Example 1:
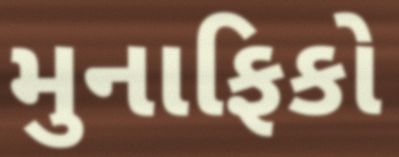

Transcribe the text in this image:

મુનાફિકો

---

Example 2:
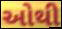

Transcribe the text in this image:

ઓથી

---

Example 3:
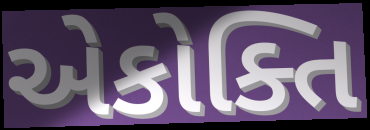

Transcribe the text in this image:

એકોક્તિ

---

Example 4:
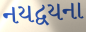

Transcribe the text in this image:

નયદ્વયના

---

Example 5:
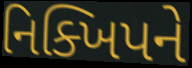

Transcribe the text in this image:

નિક્ખિપને